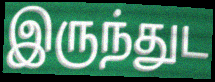
இருந்துட